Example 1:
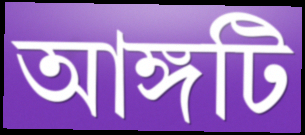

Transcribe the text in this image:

আঙ্গটি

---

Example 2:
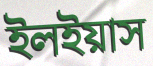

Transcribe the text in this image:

ইলইয়াস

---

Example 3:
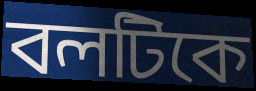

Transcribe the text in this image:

বলটিকে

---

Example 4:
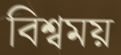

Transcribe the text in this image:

বিশ্বময়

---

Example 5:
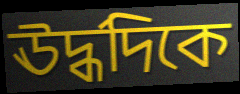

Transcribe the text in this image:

ঊর্দ্ধদিকে